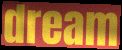
dream